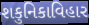
શકુનિકાવિહાર